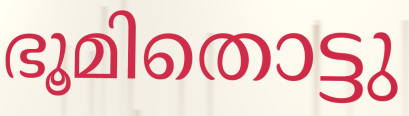
ഭൂമിതൊട്ടു